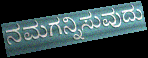
ನಮಗನ್ನಿಸುವುದು